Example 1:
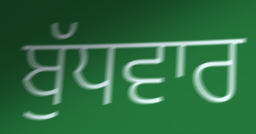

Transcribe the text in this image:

ਬੁੱਧਵਾਰ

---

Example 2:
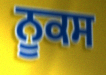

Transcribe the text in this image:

ਨੂਕਸ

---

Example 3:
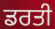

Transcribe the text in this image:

ਡਰਤੀ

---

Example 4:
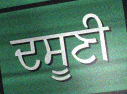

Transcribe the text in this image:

ਦਸੂਣੀ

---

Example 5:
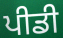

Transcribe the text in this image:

ਪੀਡੀ